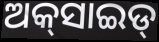
ଅକ୍‌ସାଇଡ୍